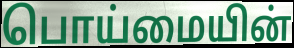
பொய்மையின்